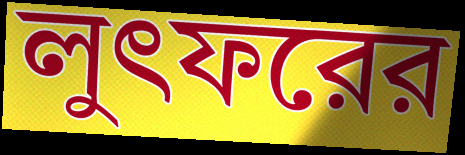
লুৎফরের